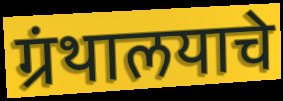
ग्रंथालयाचे